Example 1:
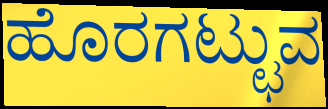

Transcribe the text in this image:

ಹೊರಗಟ್ಟುವ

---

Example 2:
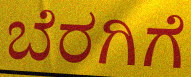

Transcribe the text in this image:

ಬೆರಗಿಗೆ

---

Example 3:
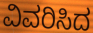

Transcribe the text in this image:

ವಿವರಿಸಿದ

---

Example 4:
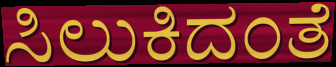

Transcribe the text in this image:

ಸಿಲುಕಿದಂತೆ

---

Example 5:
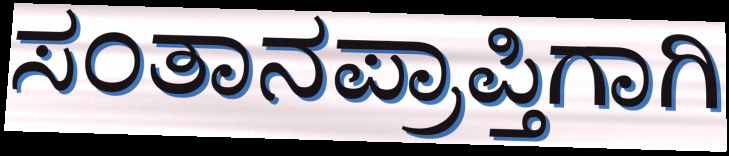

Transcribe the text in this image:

ಸಂತಾನಪ್ರಾಪ್ತಿಗಾಗಿ